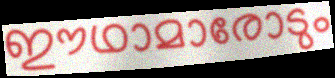
ഈഥാമാരോടും